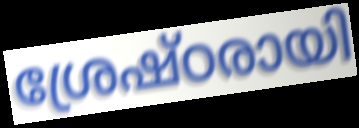
ശ്രേഷ്ഠരായി